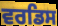
ਵਰਡਿਸ